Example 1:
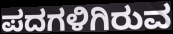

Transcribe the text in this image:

ಪದಗಳಿಗಿರುವ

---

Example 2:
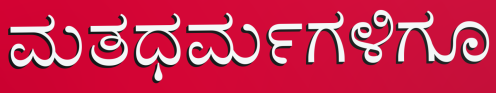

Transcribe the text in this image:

ಮತಧರ್ಮಗಳಿಗೂ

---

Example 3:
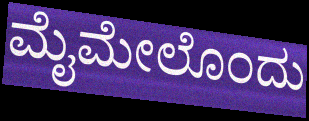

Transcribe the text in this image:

ಮೈಮೇಲೊಂದು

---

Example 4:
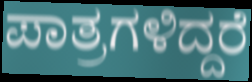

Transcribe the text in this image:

ಪಾತ್ರಗಳಿದ್ದರೆ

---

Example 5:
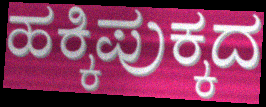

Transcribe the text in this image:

ಹಕ್ಕಿಪುಕ್ಕದ